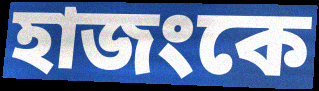
হাজংকে